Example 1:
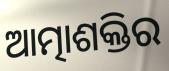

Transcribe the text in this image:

ଆତ୍ମାଶକ୍ତିର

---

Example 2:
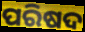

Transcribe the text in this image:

ପରିଷଦ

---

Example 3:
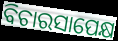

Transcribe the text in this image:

ବିଚାରସାପେକ୍ଷ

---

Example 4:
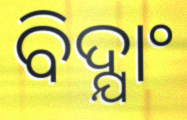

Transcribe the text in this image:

ବିଦ୍ଯାଂ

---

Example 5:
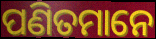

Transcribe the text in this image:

ପଣିତମାନେ